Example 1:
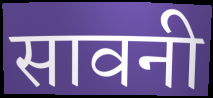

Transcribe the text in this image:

सावनी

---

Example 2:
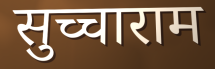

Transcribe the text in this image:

सुच्चाराम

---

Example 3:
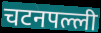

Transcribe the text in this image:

चटनपल्ली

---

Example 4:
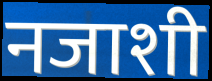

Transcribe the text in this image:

नजाशी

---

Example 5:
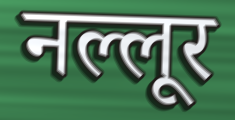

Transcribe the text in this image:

नल्लूर